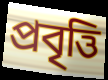
প্রবৃত্তি